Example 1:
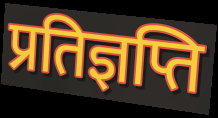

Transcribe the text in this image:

प्रतिज्ञप्ति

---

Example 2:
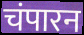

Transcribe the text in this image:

चंपारन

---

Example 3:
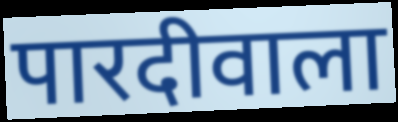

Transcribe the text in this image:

पारदीवाला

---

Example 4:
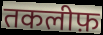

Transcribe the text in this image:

तकलीफ़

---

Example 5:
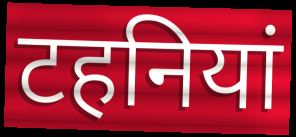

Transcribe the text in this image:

टहनियां